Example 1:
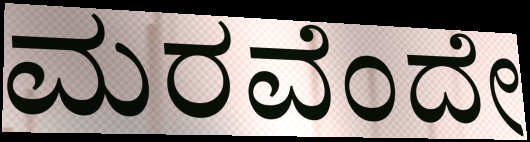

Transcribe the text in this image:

ಮರವೆಂದೇ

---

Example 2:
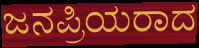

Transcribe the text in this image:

ಜನಪ್ರಿಯರಾದ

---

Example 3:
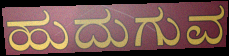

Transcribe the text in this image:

ಹುದುಗುವ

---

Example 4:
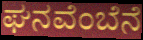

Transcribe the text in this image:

ಘನವೆಂಬೆನೆ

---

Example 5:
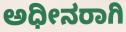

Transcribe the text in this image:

ಅಧೀನರಾಗಿ